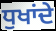
ਧੁਖਾਂਦੇ